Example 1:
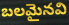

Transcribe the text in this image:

బలమైనవి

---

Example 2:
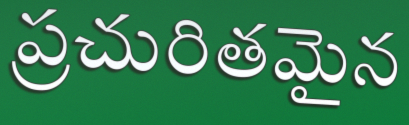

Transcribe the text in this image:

ప్రచురితమైన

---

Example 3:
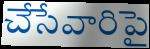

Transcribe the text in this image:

చేసేవారిపై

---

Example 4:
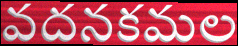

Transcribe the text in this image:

వదనకమల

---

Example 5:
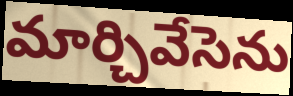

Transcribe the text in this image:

మార్చివేసెను